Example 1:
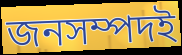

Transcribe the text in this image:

জনসম্পদই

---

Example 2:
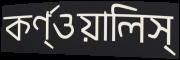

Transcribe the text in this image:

কর্ণ্ওয়ালিস্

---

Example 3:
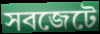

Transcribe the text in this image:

সবজেটে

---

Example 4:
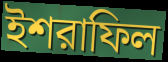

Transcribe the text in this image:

ইশরাফিল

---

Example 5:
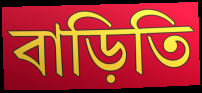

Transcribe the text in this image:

বাড়িতি